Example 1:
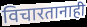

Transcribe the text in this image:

विचारतानाही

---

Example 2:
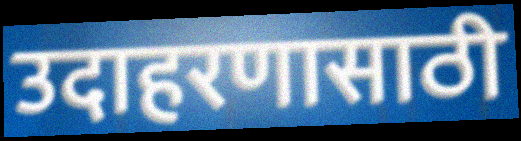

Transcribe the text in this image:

उदाहरणासाठी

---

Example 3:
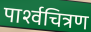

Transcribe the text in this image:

पार्श्वचित्रण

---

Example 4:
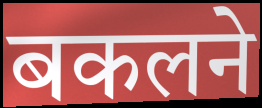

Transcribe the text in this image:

बकलने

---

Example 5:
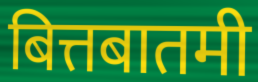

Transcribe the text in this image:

बित्तबातमी